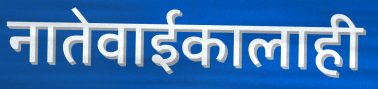
नातेवाईकालाही